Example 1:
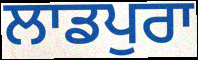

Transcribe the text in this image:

ਲਾਡਪੁਰਾ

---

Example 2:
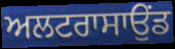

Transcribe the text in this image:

ਅਲਟਰਾਸਾਉਂਡ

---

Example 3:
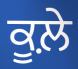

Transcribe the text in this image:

ਕੂਲ਼ੇ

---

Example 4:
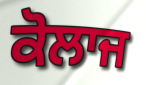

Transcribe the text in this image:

ਕੋਲਾਜ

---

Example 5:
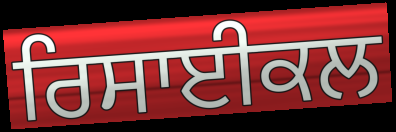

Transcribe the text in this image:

ਰਿਸਾਈਕਲ